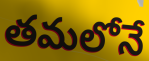
తమలోనే